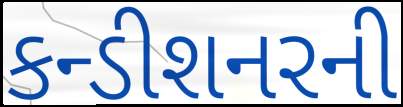
કન્ડીશનરની